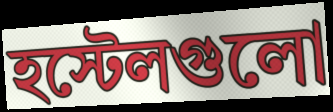
হস্টেলগুলো